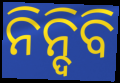
ନିନ୍ଦିବି